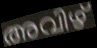
അവിഴ്